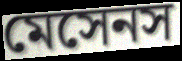
মেসেনস